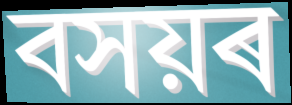
বসয়ৰ